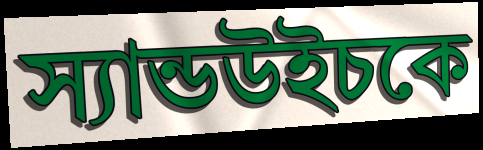
স্যান্ডউইচকে